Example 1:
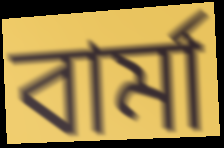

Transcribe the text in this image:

বাৰ্মা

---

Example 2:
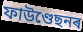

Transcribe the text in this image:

ফাউণ্ডেছনৰ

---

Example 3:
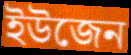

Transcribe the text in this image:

ইউজেন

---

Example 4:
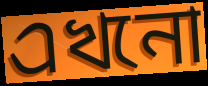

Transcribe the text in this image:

এখনো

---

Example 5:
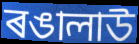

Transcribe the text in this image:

ৰঙালাউ